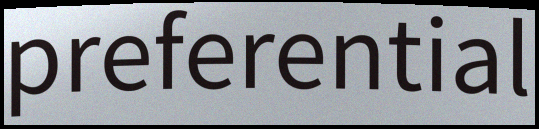
preferential